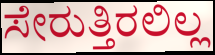
ಸೇರುತ್ತಿರಲಿಲ್ಲ